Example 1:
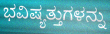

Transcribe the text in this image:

ಭವಿಷ್ಯತ್ತುಗಳನ್ನು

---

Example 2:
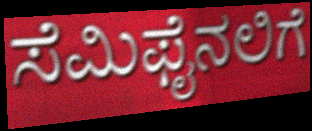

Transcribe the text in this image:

ಸೆಮಿಫೈನಲಿಗೆ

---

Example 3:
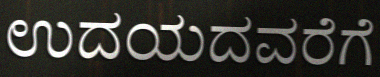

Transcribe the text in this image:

ಉದಯದವರೆಗೆ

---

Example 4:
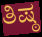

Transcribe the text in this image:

ತಿಷ್ಠ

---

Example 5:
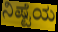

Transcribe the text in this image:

ನಿಷ್ಟೆಯ